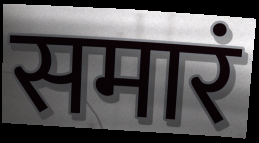
समारं